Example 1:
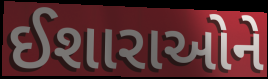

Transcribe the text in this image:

ઈશારાઓને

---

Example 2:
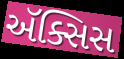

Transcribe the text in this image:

ઍક્સિસ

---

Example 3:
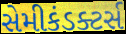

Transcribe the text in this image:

સેમીકંડક્ટર્સ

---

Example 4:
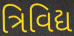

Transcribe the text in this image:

ત્રિવિદ્ય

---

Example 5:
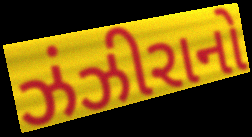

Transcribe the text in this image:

ઝંઝીરાનો